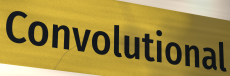
Convolutional